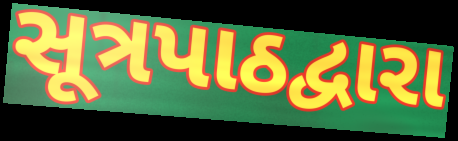
સૂત્રપાઠદ્વારા